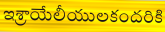
ఇశ్రాయేలీయులకందరికి